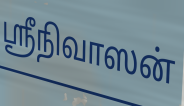
ஸ்ரீநிவாஸன்